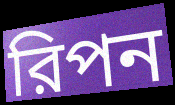
রিপন